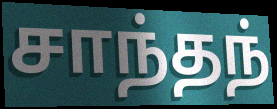
சாந்தந்